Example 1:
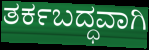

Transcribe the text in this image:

ತರ್ಕಬದ್ಧವಾಗಿ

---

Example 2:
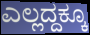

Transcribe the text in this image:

ಎಲ್ಲದ್ದಕ್ಕೂ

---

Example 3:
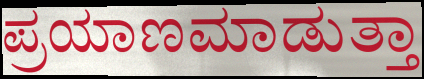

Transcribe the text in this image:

ಪ್ರಯಾಣಮಾಡುತ್ತಾ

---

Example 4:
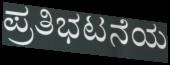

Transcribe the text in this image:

ಪ್ರತಿಭಟನೆಯ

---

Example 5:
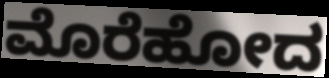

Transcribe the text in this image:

ಮೊರೆಹೋದ